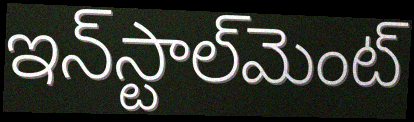
ఇన్‌స్టాల్‌మెంట్